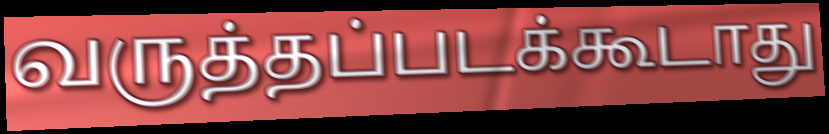
வருத்தப்படக்கூடாது